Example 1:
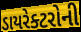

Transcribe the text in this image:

ડાયરેક્ટરોની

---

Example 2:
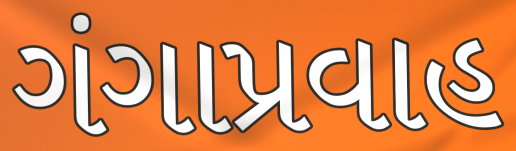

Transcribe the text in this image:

ગંગાપ્રવાહ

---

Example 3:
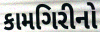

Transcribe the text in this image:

કામગિરીનો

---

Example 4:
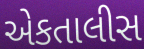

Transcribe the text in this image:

એકતાલીસ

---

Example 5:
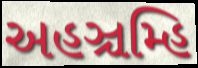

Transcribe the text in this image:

અહઞ્ચમ્હિ